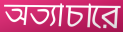
অত্যাচারে